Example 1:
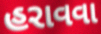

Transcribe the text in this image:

હરાવવા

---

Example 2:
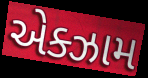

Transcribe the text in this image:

એક્ઝામ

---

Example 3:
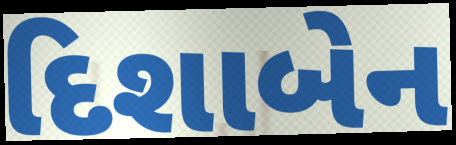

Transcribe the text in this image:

દિશાબેન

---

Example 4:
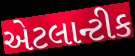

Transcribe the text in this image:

એટલાન્ટીક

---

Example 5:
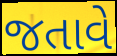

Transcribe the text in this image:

જતાવે